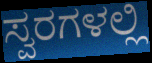
ಸ್ವರಗಳಲ್ಲಿ